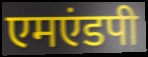
एमएंडपी